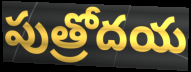
పుత్రోదయ